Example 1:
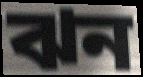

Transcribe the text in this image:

ঝন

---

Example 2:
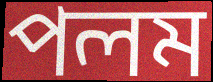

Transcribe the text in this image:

পলম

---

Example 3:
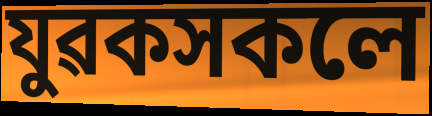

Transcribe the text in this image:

যুৱকসকলে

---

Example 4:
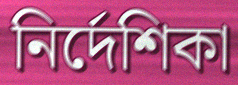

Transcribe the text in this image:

নিৰ্দেশিকা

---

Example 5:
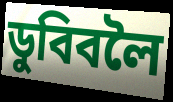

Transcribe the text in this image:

ডুবিবলৈ